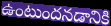
ఉంటుందనడానికి